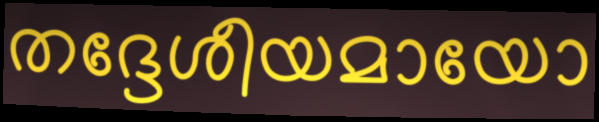
തദ്ദേശീയമായോ